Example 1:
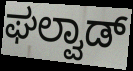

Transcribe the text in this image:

ಘಲ್ವಾಡ್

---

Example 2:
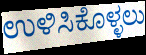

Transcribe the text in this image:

ಉಳಿಸಿಕೊಳ್ಳಲು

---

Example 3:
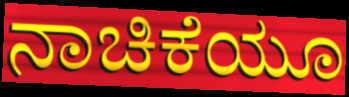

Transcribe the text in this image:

ನಾಚಿಕೆಯೂ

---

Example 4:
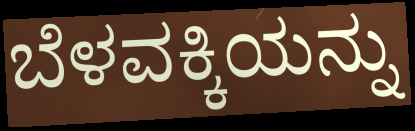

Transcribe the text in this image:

ಬೆಳವಕ್ಕಿಯನ್ನು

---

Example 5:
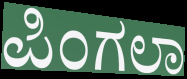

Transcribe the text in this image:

ಪಿಂಗಲಾ